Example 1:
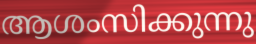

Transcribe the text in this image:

ആശംസിക്കുന്നു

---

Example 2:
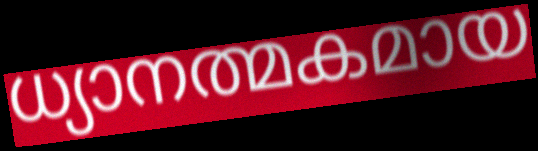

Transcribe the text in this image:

ധ്യാനത്മകമായ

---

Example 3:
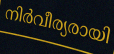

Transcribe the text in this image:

നിർവീര്യരായി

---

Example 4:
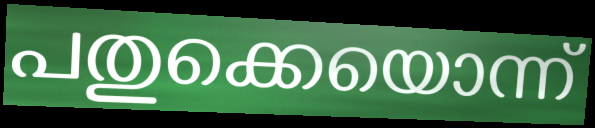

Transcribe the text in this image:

പതുക്കെയൊന്ന്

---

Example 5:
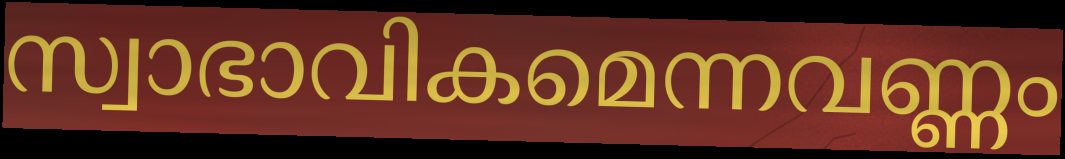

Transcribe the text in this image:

സ്വാഭാവികമെന്നവണ്ണം